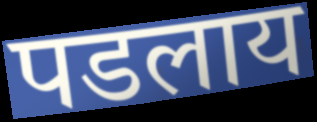
पडलाय